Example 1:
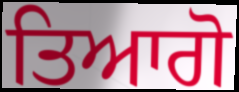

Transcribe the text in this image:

ਤਿਆਗੋ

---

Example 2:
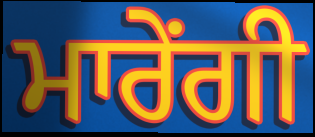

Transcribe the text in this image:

ਮਾਰੇਂਗੀ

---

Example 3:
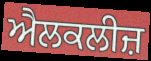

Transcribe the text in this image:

ਐਲਕਲੀਜ਼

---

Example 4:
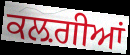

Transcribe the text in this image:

ਕਲ਼ਗੀਆਂ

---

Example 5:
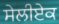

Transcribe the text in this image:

ਸੇਲੀਏਕ